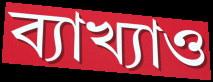
ব্যাখ্যাও